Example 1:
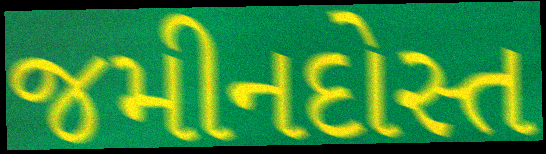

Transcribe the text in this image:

જમીનદોસ્ત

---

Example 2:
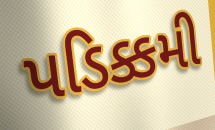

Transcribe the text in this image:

પડિક્કમી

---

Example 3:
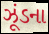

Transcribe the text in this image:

ઝૂંડના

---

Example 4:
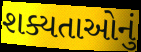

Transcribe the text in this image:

શક્યતાઓનું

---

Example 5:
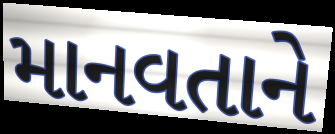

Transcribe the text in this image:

માનવતાને